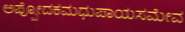
ಅಪ್ಪೋದಕಮಧುಪಾಯಸಮೇವ